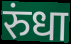
रुंधा